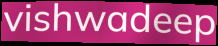
vishwadeep